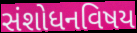
સંશોધનવિષય